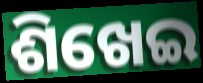
ଶିଖେଇ